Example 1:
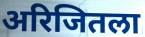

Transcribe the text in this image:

अरिजितला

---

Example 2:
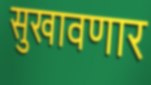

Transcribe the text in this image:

सुखावणार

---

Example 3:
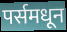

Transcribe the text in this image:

पर्समधून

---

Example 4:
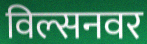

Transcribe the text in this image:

विल्सनवर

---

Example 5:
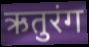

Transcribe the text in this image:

ऋतुरंग